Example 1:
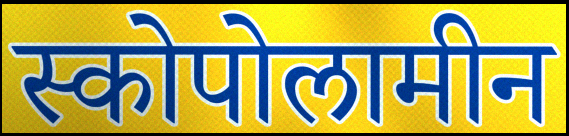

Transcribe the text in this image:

स्कोपोलामीन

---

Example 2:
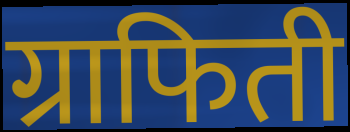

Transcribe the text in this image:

ग्राफिती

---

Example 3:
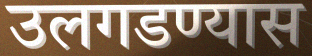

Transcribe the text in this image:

उलगडण्यास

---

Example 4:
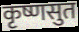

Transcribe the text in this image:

कृष्णसुत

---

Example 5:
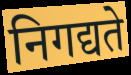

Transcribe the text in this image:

निगद्यते